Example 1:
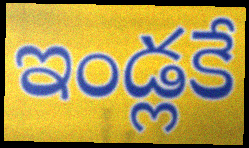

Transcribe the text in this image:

ఇండ్లకే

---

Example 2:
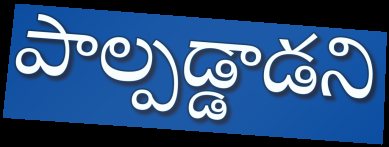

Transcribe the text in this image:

పాల్పడ్డాడని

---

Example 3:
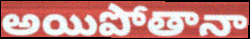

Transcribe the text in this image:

అయిపోతానా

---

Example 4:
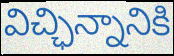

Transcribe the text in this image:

విచ్ఛిన్నానికి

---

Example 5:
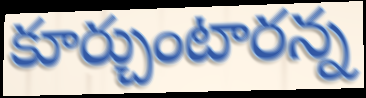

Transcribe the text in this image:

కూర్చుంటారన్న